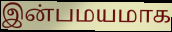
இன்பமயமாக